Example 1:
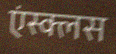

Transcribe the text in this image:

एंस्क्लस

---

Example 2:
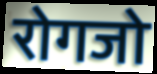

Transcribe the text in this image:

रोगजो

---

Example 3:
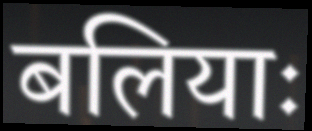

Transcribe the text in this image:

बलियाः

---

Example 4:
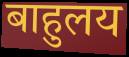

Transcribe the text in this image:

बाहुलय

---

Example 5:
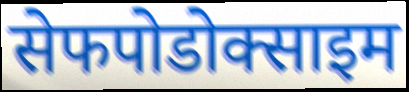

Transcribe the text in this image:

सेफपोडोक्साइम